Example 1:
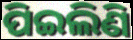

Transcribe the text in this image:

ପିଇଲିଣି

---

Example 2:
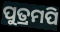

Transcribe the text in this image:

ପୁତ୍ରମପି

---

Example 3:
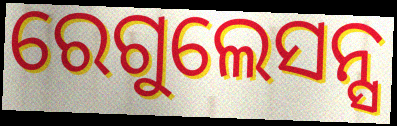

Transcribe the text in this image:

ରେଗୁଲେସନ୍ସ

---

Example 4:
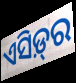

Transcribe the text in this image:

ଏସିଡ଼୍‌ର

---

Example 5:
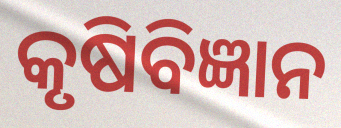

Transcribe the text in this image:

କୃଷିବିଜ୍ଞାନ